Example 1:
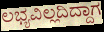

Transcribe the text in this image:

ಲಭ್ಯವಿಲ್ಲದಿದ್ದಾಗ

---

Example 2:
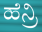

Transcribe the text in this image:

ಹೆನ್ರಿ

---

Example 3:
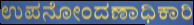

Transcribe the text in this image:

ಉಪನೋಂದಣಾಧಿಕಾರಿ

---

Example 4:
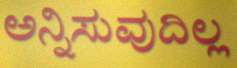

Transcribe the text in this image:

ಅನ್ನಿಸುವುದಿಲ್ಲ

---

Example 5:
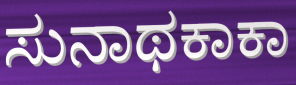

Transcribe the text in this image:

ಸುನಾಥಕಾಕಾ